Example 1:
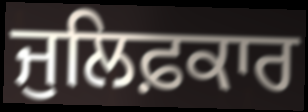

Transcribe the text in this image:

ਜੁਲਿਫ਼ਕਾਰ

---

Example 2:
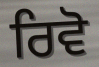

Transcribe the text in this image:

ਰਿਵੋ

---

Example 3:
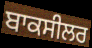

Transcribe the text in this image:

ਬਾਕਸੀਲਰ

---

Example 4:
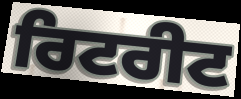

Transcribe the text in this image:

ਰਿਟਰੀਟ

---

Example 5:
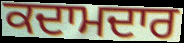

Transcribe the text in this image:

ਕਦਾਮਦਾਰ